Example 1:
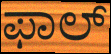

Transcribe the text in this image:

ಫಾಲ್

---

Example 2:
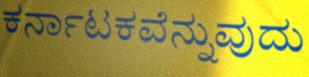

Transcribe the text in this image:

ಕರ್ನಾಟಕವೆನ್ನುವುದು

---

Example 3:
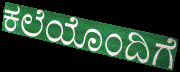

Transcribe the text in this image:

ಕಲೆಯೊಂದಿಗೆ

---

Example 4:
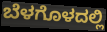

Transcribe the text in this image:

ಬೆಳಗೊಳದಲ್ಲಿ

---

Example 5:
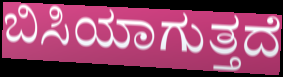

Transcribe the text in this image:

ಬಿಸಿಯಾಗುತ್ತದೆ